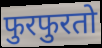
फुरफुरतो